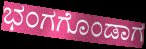
ಭಂಗಗೊಂಡಾಗ